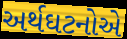
અર્થઘટનોએ